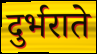
दुर्भराते